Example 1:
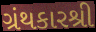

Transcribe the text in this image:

ગ્રંથકારશ્રી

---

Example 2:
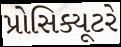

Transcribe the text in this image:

પ્રોસિક્યૂટરે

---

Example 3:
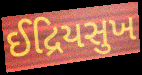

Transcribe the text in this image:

ઈદ્રિયસુખ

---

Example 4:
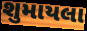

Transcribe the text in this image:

શુમાયલા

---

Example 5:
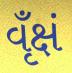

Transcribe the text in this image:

વૃઁક્ષં